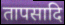
तापसादि